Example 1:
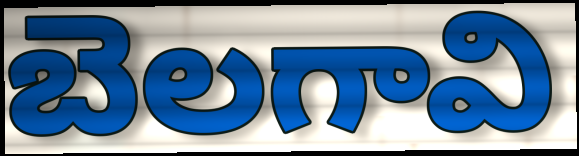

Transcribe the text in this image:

బెలగావి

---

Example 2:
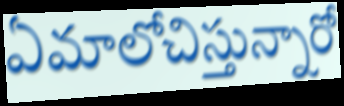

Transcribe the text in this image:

ఏమాలోచిస్తున్నారో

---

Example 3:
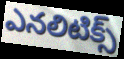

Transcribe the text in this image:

ఎనలిటిక్స్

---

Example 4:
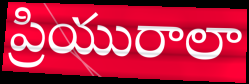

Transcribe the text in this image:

ప్రియురాలా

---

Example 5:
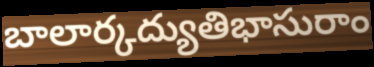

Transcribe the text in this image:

బాలార్కద్యుతిభాసురాం